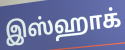
இஸ்ஹாக்